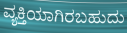
ವ್ಯಕ್ತಿಯಾಗಿರಬಹುದು